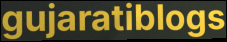
gujaratiblogs